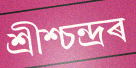
শ্ৰীশ্চন্দ্ৰৰ